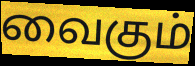
வைகும்